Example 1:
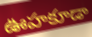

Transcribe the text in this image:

ఊహకూడా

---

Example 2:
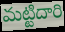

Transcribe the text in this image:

మట్టిదారి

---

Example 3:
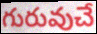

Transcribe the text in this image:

గురువుచే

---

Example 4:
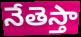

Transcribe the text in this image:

నేతెస్తా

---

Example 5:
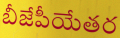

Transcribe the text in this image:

బీజేపీయేతర